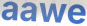
aawe